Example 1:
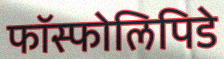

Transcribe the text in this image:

फॉस्फोलिपिडे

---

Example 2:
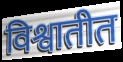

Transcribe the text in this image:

विश्वातीत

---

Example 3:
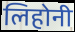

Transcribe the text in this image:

लिहोनी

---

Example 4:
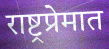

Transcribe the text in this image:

राष्ट्रप्रेमात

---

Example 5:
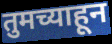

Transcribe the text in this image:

तुमच्याहून